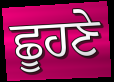
ਛੂਹਣੇ